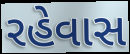
રહેવાસ